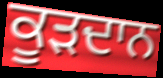
ਕੂੜਦਾਨ